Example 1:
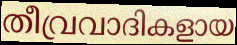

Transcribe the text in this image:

തീവ്രവാദികളായ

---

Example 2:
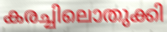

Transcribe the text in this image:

കരച്ചിലൊതുക്കി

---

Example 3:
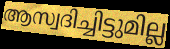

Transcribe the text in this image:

ആസ്വദിച്ചിട്ടുമില്ല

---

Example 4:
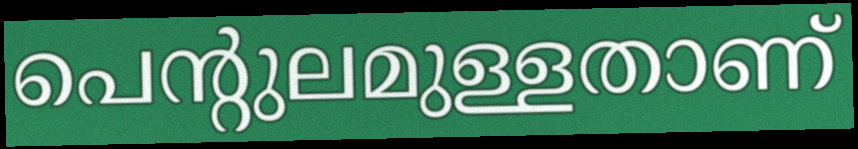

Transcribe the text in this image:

പെന്റുലമുള്ളതാണ്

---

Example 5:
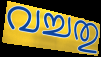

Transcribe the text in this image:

വച്ചതു